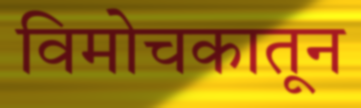
विमोचकातून